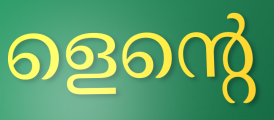
ളെന്റെ